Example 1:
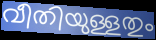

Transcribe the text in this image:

വീതിയുള്ളതും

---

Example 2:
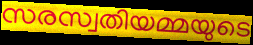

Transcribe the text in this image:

സരസ്വതിയമ്മയുടെ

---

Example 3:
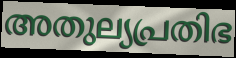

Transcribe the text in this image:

അതുല്യപ്രതിഭ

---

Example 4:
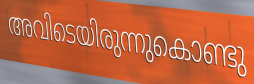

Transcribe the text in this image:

അവിടെയിരുന്നുകൊണ്ടു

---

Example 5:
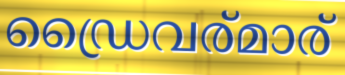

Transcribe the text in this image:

ഡ്രൈവര്മാര്